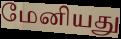
மேனியது